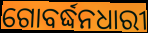
ଗୋବର୍ଦ୍ଧନଧାରୀ